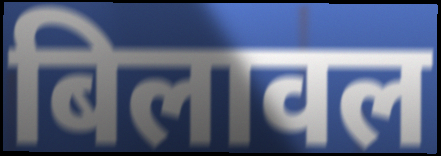
बिलावल